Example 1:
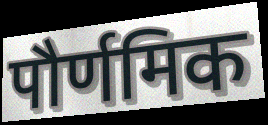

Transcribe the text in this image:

पौर्णमिक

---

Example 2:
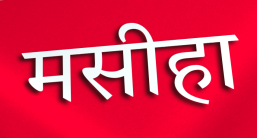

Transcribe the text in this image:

मसीहा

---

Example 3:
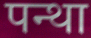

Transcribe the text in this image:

पन्‍था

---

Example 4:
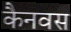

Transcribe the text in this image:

कैनवस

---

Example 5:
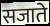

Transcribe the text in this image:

सजाते